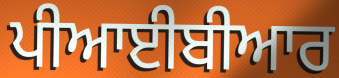
ਪੀਆਈਬੀਆਰ